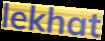
lekhat